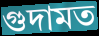
গুদামত